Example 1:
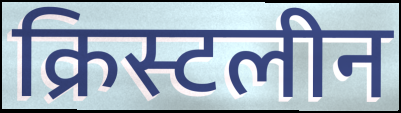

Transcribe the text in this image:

क्रिस्टलीन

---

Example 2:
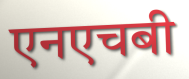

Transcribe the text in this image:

एनएचबी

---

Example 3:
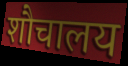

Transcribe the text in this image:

शौचालय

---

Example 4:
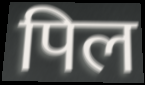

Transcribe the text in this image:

पिल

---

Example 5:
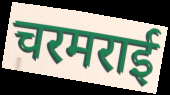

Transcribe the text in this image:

चरमराई